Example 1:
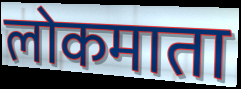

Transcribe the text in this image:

लोकमाता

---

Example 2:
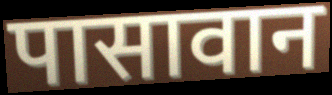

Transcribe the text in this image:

पासावान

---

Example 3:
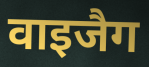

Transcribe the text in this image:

वाइजैग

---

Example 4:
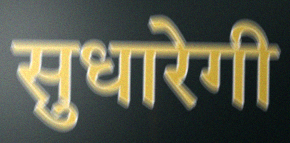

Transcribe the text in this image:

सुधारेगी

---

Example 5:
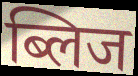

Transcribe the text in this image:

ब्लिज